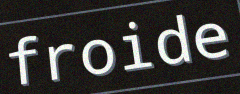
froide